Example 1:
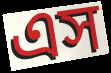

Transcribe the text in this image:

এস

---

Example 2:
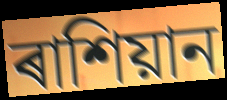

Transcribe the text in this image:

ৰাশিয়ান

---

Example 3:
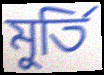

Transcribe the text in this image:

মুৰ্তি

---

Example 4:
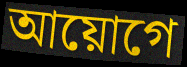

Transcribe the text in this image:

আয়োগে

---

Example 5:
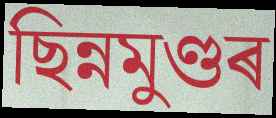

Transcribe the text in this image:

ছিন্নমুণ্ডৰ